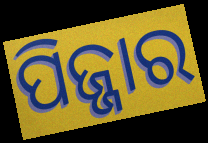
ପିଜ୍ଜାର